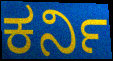
ಕರ್ನಿ